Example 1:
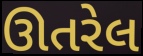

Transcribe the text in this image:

ઊતરેલ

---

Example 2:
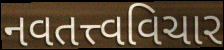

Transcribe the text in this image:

નવતત્ત્વવિચાર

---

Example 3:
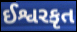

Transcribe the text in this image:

ઈશ્વરકૃત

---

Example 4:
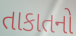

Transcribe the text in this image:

તાકાતનો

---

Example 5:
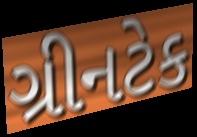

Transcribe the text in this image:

ગ્રીનટેક